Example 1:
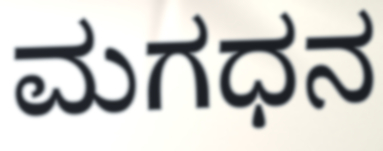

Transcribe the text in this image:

ಮಗಧನ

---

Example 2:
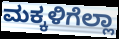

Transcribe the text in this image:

ಮಕ್ಕಳಿಗೆಲ್ಲಾ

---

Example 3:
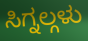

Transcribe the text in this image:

ಸಿಗ್ನಲ್ಗಳು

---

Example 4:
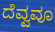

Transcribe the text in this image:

ದೆವ್ವವೂ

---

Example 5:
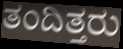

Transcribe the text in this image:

ತಂದಿತ್ತರು